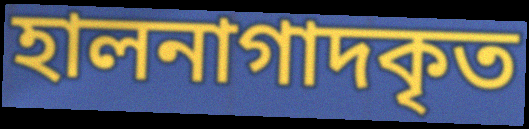
হালনাগাদকৃত